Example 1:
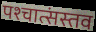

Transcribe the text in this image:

पश्चात्संस्तव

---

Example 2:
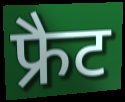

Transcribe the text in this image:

फ्रैट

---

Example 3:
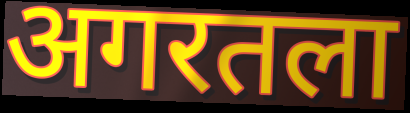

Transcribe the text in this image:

अगरतला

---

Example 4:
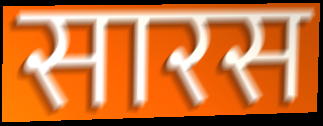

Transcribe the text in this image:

सारस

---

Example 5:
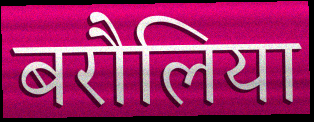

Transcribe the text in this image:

बरौलिया